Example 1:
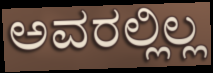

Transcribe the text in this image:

ಅವರಲ್ಲಿಲ್ಲ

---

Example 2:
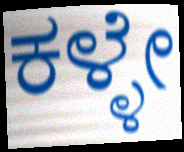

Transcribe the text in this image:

ಕಳ್ಳೇ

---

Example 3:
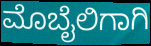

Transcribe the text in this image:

ಮೊಬೈಲಿಗಾಗಿ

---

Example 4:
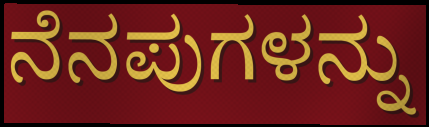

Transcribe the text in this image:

ನೆನಪುಗಳನ್ನು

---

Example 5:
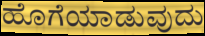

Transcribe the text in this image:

ಹೊಗೆಯಾಡುವುದು